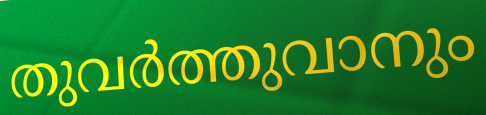
തുവർത്തുവാനും